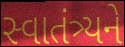
સ્વાતંત્ર્યને